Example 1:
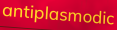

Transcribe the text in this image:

antiplasmodic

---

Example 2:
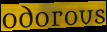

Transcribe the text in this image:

odorous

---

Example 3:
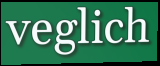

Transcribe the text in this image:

veglich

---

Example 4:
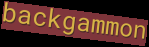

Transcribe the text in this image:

backgammon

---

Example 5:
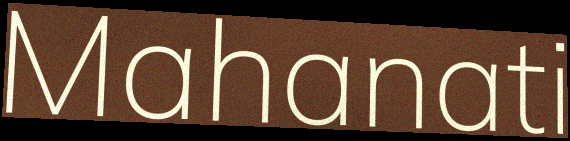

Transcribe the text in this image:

Mahanati